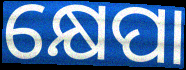
କ୍ଷେପା